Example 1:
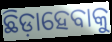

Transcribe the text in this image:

ଛିଡ଼ାହେବାକୁ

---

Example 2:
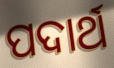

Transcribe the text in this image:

ପଦାର୍ଥ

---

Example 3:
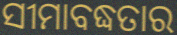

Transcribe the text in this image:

ସୀମାବଦ୍ଧତାର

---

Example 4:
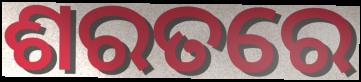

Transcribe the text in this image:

ଶରତରେ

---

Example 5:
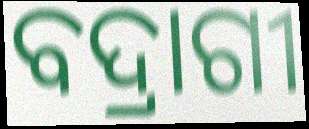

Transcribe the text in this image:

ବଦ୍ରାଗୀ